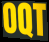
OQT